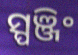
ସ୍ପଞ୍ଜିଂ